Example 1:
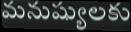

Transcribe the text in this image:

మనుష్యులకు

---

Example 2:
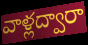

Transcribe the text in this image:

వాళ్లద్వారా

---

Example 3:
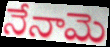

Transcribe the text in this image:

నేనామె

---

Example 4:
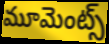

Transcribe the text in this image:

మూమెంట్స్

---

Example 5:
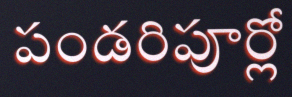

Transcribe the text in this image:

పండరిపూర్లో